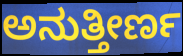
ಅನುತ್ತೀರ್ಣ